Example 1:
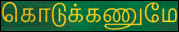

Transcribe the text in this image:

கொடுக்கணுமே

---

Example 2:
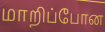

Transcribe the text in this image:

மாறிப்போன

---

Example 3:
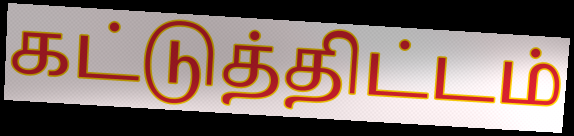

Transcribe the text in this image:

கட்டுத்திட்டம்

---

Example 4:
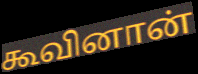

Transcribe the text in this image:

கூவினான்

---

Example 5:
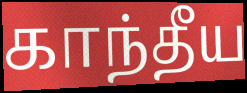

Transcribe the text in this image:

காந்தீய